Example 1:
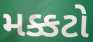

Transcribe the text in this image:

મક્કટો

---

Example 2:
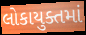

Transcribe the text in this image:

લોકાયુક્તમાં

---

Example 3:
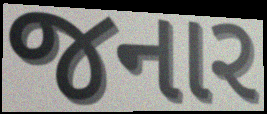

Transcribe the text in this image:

જનાર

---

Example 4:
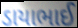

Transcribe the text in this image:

ડાયાભાઈ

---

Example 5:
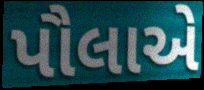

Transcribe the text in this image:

પૌલાએ